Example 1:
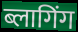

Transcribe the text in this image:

ब्लागिंग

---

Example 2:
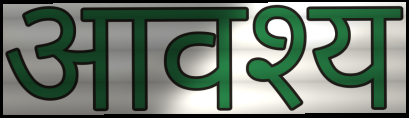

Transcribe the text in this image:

आवश्य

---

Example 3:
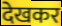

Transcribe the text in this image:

देखकर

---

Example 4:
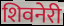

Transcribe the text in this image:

शिवनेरी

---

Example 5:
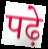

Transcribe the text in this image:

पढ़े